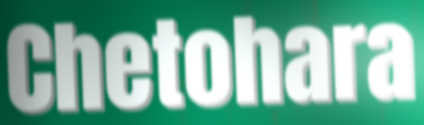
Chetohara